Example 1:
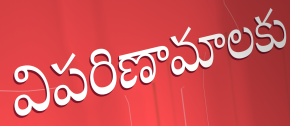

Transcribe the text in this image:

విపరిణామాలకు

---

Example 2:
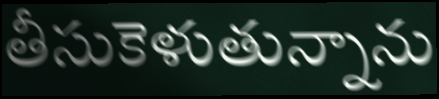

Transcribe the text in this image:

తీసుకెళుతున్నాను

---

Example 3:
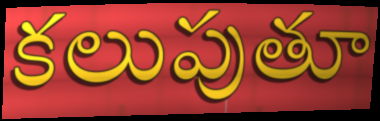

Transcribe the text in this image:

కలుపుతూ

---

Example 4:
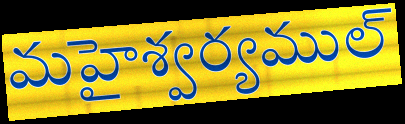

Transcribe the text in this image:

మహైశ్వర్యముల్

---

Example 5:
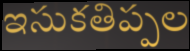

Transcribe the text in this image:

ఇసుకతిప్పల